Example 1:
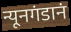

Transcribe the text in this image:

न्यूनगंडानं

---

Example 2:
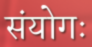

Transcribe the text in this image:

संयोगः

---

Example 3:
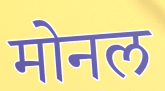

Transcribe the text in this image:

मोनल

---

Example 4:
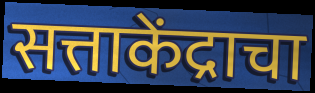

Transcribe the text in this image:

सत्ताकेंद्राचा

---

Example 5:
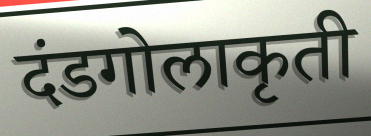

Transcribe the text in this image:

दंडगोलाकृती